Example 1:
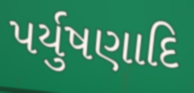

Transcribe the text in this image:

પર્યુષણાદિ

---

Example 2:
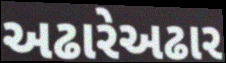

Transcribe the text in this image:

અઢારેઅઢાર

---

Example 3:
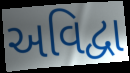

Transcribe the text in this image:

અવિદ્વા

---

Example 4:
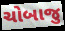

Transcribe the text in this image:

ચોબાજુ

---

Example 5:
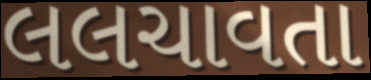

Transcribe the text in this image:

લલચાવતા